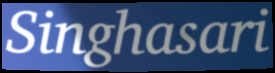
Singhasari